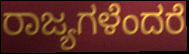
ರಾಜ್ಯಗಳೆಂದರೆ